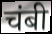
चंबी